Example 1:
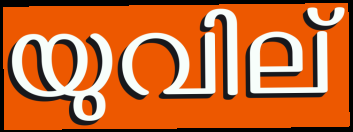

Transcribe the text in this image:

യുവില്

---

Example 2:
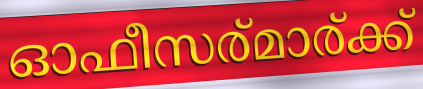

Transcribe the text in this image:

ഓഫീസര്മാര്ക്ക്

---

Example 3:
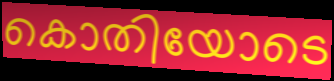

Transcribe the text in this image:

കൊതിയോടെ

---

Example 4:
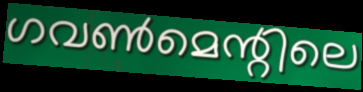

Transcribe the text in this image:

ഗവൺമെന്റിലെ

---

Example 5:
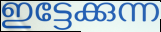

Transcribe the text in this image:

ഇട്ടേക്കുന്ന